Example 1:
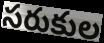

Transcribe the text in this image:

సరుకుల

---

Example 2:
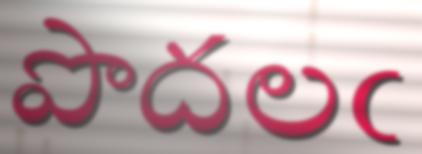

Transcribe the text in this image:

పొదలఁ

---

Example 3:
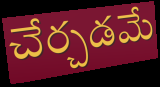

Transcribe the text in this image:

చేర్చడమే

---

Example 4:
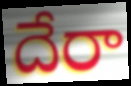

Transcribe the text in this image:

దేరా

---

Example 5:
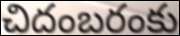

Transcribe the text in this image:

చిదంబరంకు